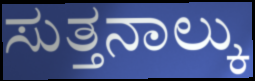
ಸುತ್ತನಾಲ್ಕು